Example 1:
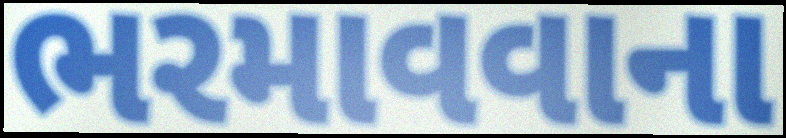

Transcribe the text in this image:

ભરમાવવાના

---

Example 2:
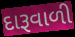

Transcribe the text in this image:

દારૂવાળી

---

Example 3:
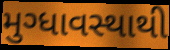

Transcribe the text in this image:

મુગ્ધાવસ્થાથી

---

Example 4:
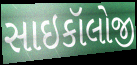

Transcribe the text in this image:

સાઇકૉલોજી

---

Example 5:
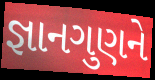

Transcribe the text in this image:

જ્ઞાનગુણને